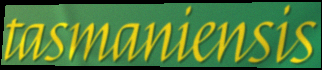
tasmaniensis